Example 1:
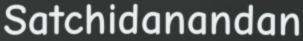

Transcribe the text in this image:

Satchidanandan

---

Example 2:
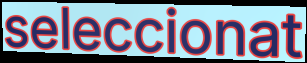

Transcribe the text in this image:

seleccionat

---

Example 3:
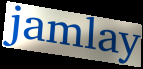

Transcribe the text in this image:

jamlay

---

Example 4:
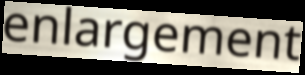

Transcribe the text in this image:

enlargement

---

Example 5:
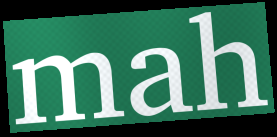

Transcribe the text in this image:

mah